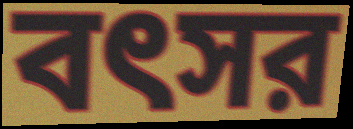
বৎসর